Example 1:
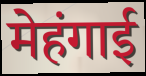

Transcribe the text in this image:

मेहंगाई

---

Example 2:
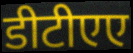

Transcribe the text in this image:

डीटीएए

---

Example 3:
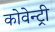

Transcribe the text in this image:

कोवेन्ट्री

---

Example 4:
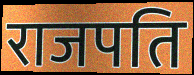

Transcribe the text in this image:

राजपति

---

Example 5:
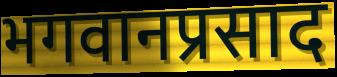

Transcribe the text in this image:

भगवानप्रसाद